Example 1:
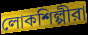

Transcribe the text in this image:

লোকশিল্পীরা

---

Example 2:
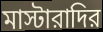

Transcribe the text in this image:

মাস্টারাদির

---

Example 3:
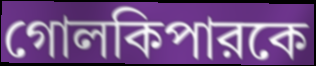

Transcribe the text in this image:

গোলকিপারকে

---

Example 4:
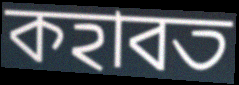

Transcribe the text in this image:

কহাবত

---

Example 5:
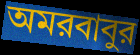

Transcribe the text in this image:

অমরবাবুর